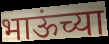
भाऊंच्या